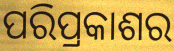
ପରିପ୍ରକାଶର